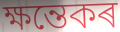
ক্ষন্তেকৰ